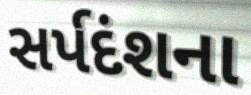
સર્પદંશના